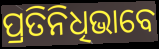
ପ୍ରତିନିଧିଭାବେ